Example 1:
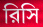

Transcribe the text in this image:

রিসি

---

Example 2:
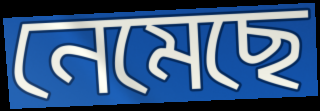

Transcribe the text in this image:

নেমেছে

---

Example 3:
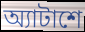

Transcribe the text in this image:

অ্যাটাশে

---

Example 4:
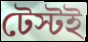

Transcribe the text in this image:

টেস্টই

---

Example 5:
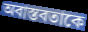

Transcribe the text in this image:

অবাস্তবতাকে